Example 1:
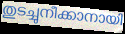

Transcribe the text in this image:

തുടച്ചുനീക്കാനായി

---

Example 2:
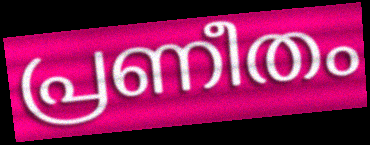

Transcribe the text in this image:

പ്രണീതം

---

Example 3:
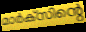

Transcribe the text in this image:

മാർക്‌സിന്റെ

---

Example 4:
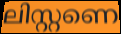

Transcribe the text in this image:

ലിസ്റ്റണെ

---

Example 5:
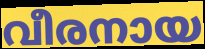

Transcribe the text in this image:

വീരനായ